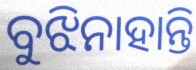
ବୁଝିନାହାନ୍ତି